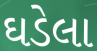
ઘડેલા